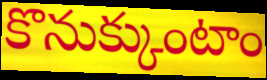
కొనుక్కుంటాం